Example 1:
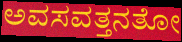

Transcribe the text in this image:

ಅವಸವತ್ತನತೋ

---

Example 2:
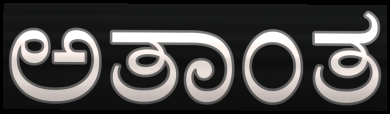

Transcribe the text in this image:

ಅತಾಂತ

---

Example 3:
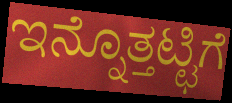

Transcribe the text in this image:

ಇನ್ನೊತ್ತಟ್ಟಿಗೆ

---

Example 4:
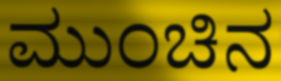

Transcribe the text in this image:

ಮುಂಚಿನ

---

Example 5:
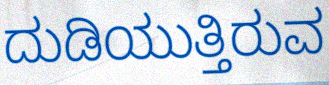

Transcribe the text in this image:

ದುಡಿಯುತ್ತಿರುವ